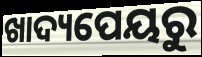
ଖାଦ୍ୟପେୟରୁ